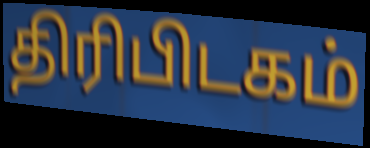
திரிபிடகம்